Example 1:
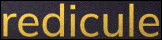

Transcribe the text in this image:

redicule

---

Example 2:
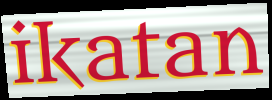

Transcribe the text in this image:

ikatan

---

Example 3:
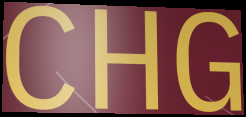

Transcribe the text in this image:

CHG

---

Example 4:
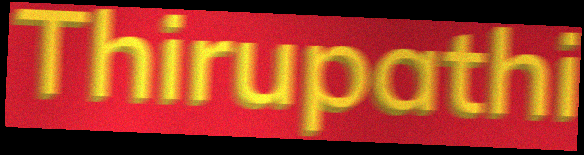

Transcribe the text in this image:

Thirupathi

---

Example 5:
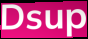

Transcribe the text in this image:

Dsup